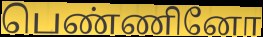
பெண்ணினோ